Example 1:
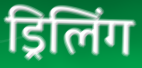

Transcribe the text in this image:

ड्रिलिंग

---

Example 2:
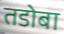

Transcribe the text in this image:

तडोबा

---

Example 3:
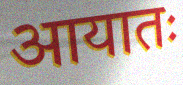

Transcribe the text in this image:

आयातः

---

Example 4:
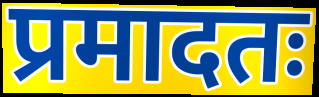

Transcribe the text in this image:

प्रमादतः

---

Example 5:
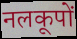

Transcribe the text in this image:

नलकूपों